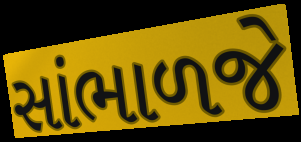
સાંભાળજે